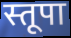
स्तूपा